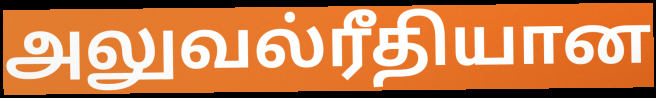
அலுவல்ரீதியான